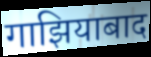
गाझियाबाद